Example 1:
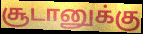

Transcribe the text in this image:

சூடானுக்கு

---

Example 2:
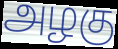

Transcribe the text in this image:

அழகு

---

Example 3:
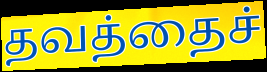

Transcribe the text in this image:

தவத்தைச்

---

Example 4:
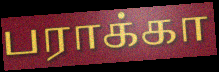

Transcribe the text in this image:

பராக்கா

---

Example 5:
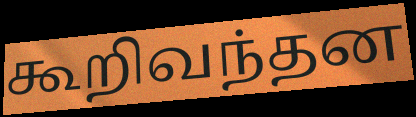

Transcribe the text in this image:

கூறிவந்தன